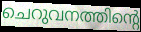
ചെറുവനത്തിന്റെ